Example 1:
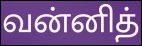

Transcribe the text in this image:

வன்னித்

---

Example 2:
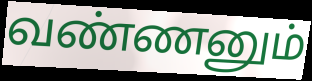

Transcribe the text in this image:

வண்ணனும்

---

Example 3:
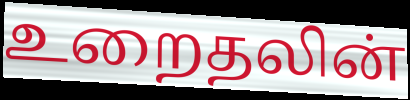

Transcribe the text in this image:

உறைதலின்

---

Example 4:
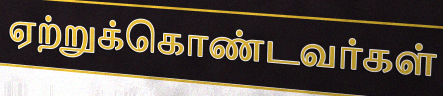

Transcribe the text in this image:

ஏற்றுக்கொண்டவர்கள்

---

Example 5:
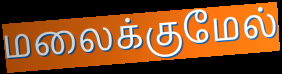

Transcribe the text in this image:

மலைக்குமேல்